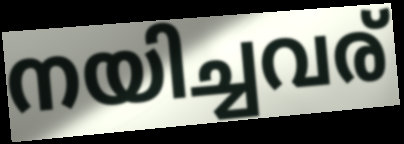
നയിച്ചവര്